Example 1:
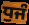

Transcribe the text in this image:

ਧੁਜੰ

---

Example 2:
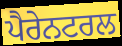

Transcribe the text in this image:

ਪੈਰੇਨਟਰਲ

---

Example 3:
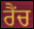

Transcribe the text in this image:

ਰੈਂਚ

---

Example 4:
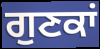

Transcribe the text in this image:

ਗੁਣਕਾਂ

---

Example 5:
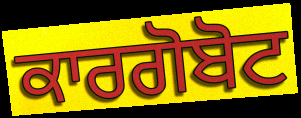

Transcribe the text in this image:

ਕਾਰਗੋਬੋਟ